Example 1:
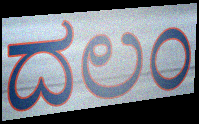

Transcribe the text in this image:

ದಲಂ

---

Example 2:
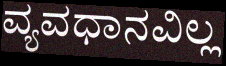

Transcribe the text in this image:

ವ್ಯವಧಾನವಿಲ್ಲ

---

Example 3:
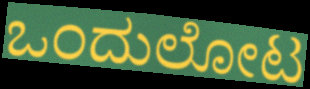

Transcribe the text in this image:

ಒಂದುಲೋಟ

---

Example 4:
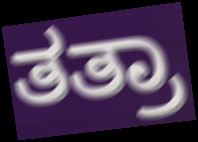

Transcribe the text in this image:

ತತ್ರಾ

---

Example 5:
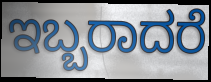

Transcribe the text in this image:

ಇಬ್ಬರಾದರೆ